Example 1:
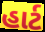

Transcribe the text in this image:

હાર્ટ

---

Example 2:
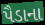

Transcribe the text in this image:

પૈડાના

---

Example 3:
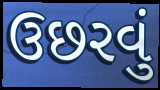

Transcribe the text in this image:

ઉછરવું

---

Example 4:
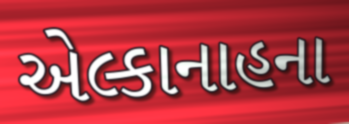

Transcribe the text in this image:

એલ્કાનાહના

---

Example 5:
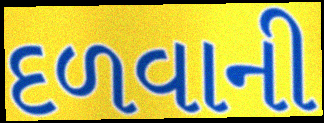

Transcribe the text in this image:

દળવાની